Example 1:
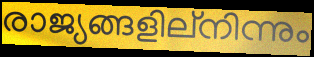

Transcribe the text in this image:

രാജ്യങ്ങളില്നിന്നും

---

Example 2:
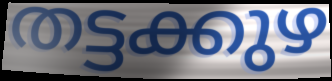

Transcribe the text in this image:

തട്ടക്കുഴ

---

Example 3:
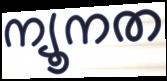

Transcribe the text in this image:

ന്യൂനത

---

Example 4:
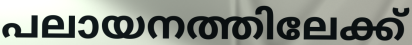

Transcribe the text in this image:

പലായനത്തിലേക്ക്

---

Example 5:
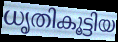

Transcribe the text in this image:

ധൃതികൂട്ടിയ